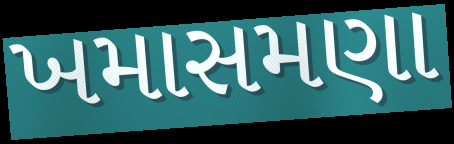
ખમાસમણા